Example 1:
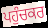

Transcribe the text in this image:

ਪਹੁੰਚਕਰ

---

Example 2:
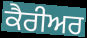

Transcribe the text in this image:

ਕੈਰੀਅਰ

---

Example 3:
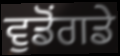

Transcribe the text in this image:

ਵੁਡੋਂਗਡੇ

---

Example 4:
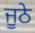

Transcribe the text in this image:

ਜੂਠੇ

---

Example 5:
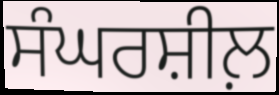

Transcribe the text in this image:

ਸੰਘਰਸ਼ੀਲ਼